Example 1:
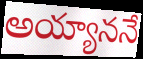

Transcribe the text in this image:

అయ్యాననే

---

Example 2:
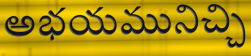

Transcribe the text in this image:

అభయమునిచ్చి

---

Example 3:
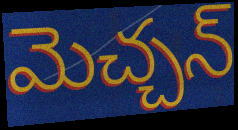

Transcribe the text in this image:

మెచ్చన్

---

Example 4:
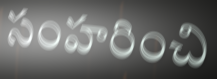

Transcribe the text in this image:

సంహరించి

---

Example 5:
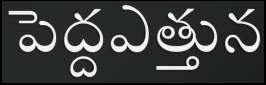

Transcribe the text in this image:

పెద్దఎత్తున